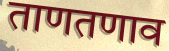
ताणतणाव